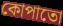
কোপাতো